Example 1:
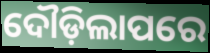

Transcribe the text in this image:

ଦୌଡ଼ିଲାପରେ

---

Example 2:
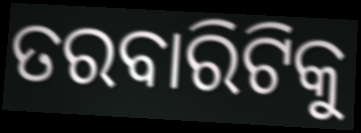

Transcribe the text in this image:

ତରବାରିଟିକୁ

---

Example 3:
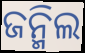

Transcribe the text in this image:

ଜନ୍ମିଲ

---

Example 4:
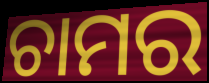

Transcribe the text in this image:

ଚାମର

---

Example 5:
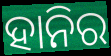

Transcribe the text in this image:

ହାନିର